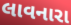
લાવનારા